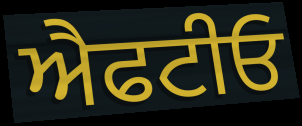
ਐਫਟੀਓ